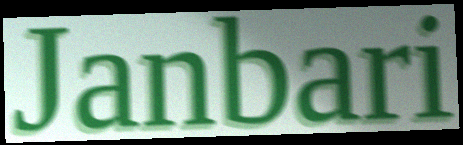
Janbari